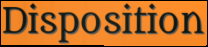
Disposition